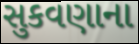
સુકવણાના